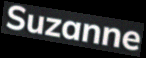
Suzanne